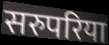
सरुपरिया